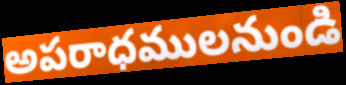
అపరాధములనుండి